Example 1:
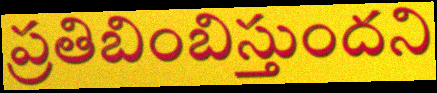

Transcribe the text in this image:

ప్రతిబింబిస్తుందని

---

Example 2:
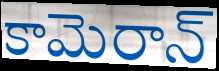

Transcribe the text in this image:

కామెరాన్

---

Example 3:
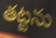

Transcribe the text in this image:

తట్టను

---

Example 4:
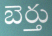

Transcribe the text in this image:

బెర్తు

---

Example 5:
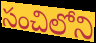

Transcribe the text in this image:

సంచిలోని